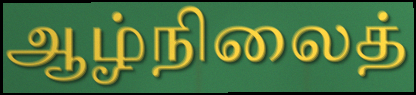
ஆழ்நிலைத்